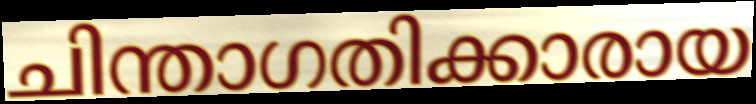
ചിന്താഗതിക്കാരായ